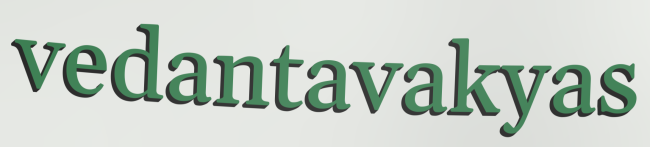
vedantavakyas